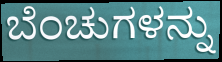
ಬೆಂಚುಗಳನ್ನು